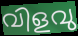
വിളവു